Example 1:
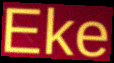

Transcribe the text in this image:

Eke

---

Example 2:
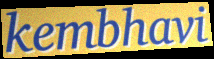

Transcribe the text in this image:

kembhavi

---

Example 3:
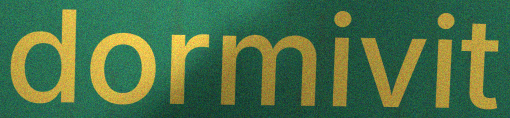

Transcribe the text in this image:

dormivit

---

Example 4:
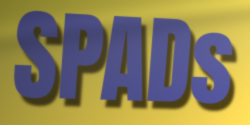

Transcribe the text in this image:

SPADs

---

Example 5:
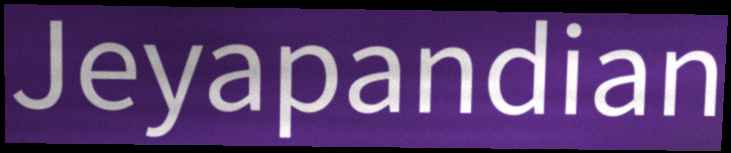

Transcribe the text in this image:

Jeyapandian